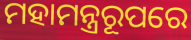
ମହାମନ୍ତ୍ରରୂପରେ